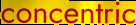
concentric